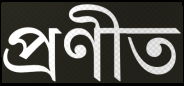
প্ৰণীত